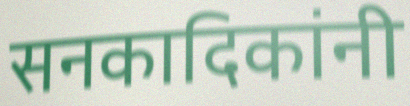
सनकादिकांनी